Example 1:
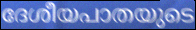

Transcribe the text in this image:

ദേശീയപാതയുടെ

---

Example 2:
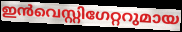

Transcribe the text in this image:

ഇൻവെസ്റ്റിഗേറ്ററുമായ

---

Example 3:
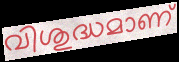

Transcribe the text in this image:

വിശുദ്ധമാണ്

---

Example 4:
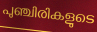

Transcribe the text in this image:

പുഞ്ചിരികളുടെ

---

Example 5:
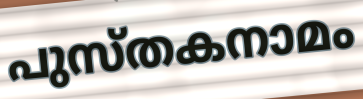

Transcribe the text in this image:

പുസ്തകനാമം